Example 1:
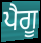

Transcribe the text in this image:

ਪੈਗੂ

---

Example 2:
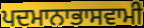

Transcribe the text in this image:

ਪਦਮਾਨਾਭਾਸਵਾਮੀ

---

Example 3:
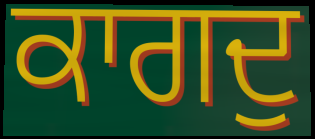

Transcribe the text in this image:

ਕਾਗਦੁ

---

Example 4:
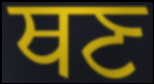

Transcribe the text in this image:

ਥਣ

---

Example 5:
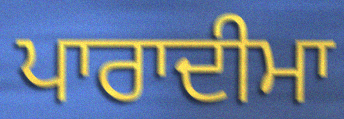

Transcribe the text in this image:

ਪਾਰਾਦੀਮਾ